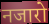
नजारो